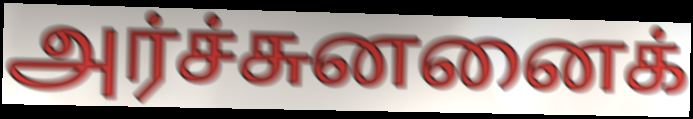
அர்ச்சுனனைக்